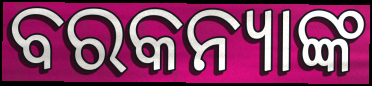
ବରକନ୍ୟାଙ୍କ